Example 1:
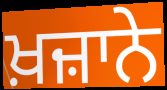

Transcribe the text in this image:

ਖ਼ਜ਼ਾਨੇ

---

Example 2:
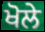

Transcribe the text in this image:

ਖੋਲੇ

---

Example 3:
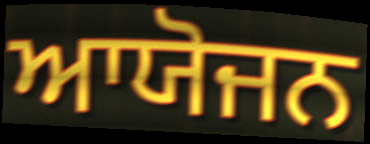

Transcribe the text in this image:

ਆਯੋਜਨ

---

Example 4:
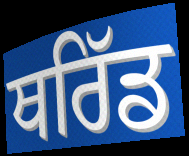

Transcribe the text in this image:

ਥਰਿੱਡ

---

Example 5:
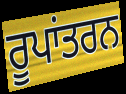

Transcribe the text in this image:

ਰੂਪਾਂਤਰਨ